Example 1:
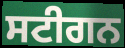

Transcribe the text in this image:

ਸਟੀਗਨ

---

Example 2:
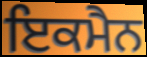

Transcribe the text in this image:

ਇਕਮੈਨ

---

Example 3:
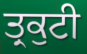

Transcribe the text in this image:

ਤ੍ਰਕੁਟੀ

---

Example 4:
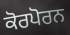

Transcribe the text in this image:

ਕੋਰਪੋਰਨ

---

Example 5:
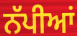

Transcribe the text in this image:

ਨੱਪੀਆਂ